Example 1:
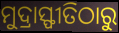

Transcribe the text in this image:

ମୁଦ୍ରାସ୍ଫୀତିଠାରୁ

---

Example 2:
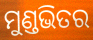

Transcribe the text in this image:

ମୁଣ୍ଡଭିତର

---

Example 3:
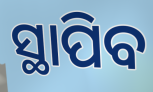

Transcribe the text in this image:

ସ୍ଥାପିବ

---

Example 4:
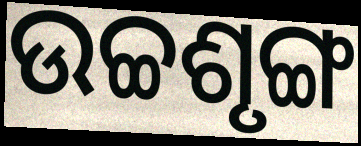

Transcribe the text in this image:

ଉଚ୍ଚଶୃଙ୍ଗ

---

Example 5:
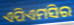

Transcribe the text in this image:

ଏପିଏମସିର